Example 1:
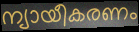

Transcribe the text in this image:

ന്യായീകരണം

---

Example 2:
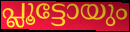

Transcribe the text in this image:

പ്ലൂട്ടോയും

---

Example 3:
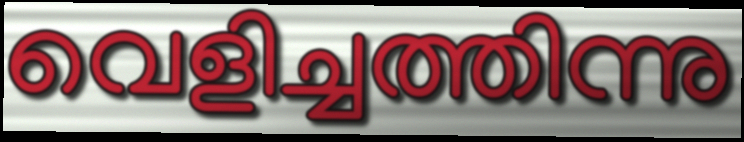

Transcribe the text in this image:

വെളിച്ചത്തിന്നു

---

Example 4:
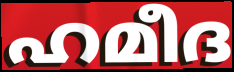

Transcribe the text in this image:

ഹമീദ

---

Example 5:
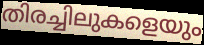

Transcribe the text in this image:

തിരച്ചിലുകളെയും